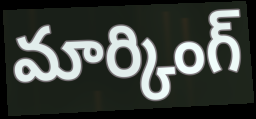
మార్కింగ్